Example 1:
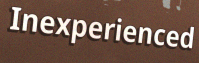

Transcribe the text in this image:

Inexperienced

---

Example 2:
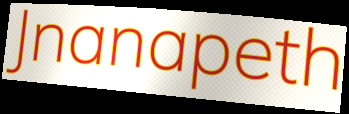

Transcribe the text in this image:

Jnanapeth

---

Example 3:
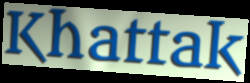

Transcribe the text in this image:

Khattak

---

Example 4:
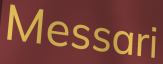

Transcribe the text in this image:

Messari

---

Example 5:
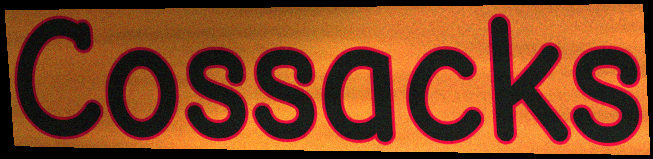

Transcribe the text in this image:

Cossacks